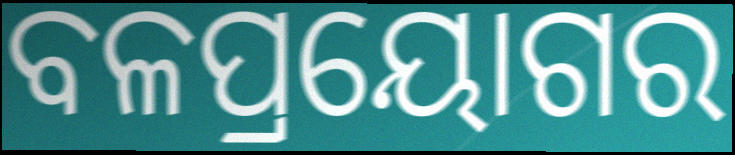
ବଳପ୍ରୟୋଗର